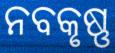
ନବକୃଷ୍ଣ